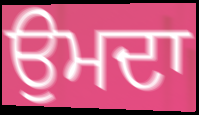
ਉਮਦਾ